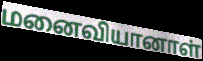
மனைவியானாள்